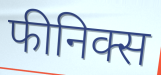
फीनिक्स